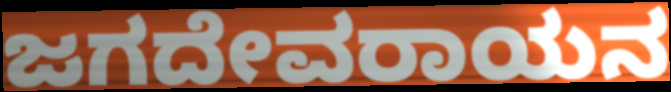
ಜಗದೇವರಾಯನ